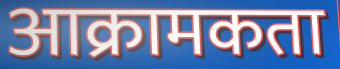
आक्रामकता